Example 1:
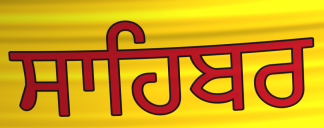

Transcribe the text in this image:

ਸਾਹਿਬਰ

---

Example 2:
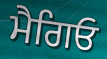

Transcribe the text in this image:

ਮੈਗਿਓ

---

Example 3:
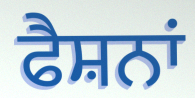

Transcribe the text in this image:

ਫੈਸ਼ਨਾਂ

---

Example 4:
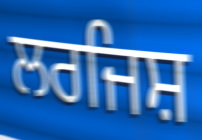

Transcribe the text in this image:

ਲਰਜਿਸ਼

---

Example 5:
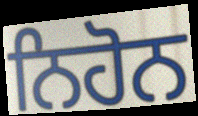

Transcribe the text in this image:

ਨਿਹੋਨ